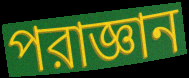
পরাজ্ঞান